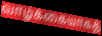
வாழ்க்கையாகத்